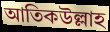
আতিকউল্লাহ